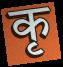
कृ